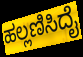
ಹಲ್ಲಣಿಸಿದೈ